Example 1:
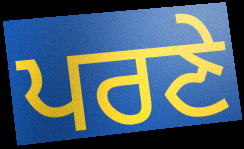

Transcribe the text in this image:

ਪਰਣੇ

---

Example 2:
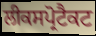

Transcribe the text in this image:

ਲੀਕਸਪ੍ਰੋਟੈਕਟ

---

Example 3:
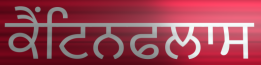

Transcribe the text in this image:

ਕੈਂਟਿਨਫਲਾਸ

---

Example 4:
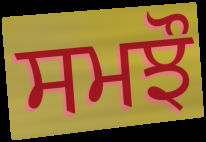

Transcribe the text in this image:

ਸਮਝੌ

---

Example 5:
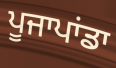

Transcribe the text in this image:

ਪੂਜਾਪਾਂਡਾ